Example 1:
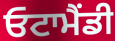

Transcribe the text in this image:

ਓਟਾਮੈਂਡੀ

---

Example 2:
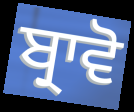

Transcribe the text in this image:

ਬ੍ਰਾਵੋ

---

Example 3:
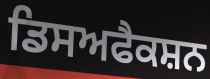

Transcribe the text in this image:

ਡਿਸਅਫੈਕਸ਼ਨ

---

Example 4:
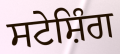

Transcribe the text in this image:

ਸਟੇਸ਼ਿੰਗ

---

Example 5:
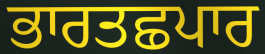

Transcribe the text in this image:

ਭਾਰਤਛਪਾਰ